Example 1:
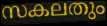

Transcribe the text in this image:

സകലതും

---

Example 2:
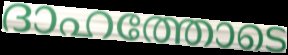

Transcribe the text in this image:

ദാഹത്തോടെ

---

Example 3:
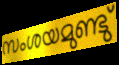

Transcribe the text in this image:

സംശയമുണ്ടു്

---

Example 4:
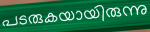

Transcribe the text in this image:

പടരുകയായിരുന്നു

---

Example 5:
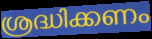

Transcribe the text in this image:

ശ്രദ്ധിക്കണം